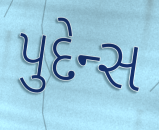
પુદેન્સ